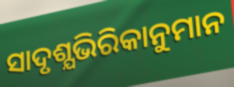
ସାଦୃଶ୍ଯଭିରିକାନୁମାନ